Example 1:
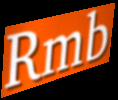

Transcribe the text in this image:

Rmb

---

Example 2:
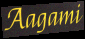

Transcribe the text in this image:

Aagami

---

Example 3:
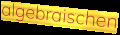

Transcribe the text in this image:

algebraischen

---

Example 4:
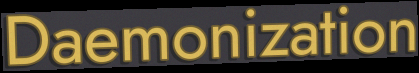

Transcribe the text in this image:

Daemonization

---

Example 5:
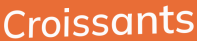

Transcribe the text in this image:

Croissants